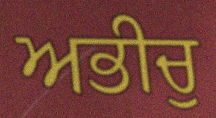
ਅਭੀਚੁ